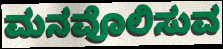
ಮನವೊಲಿಸುವ